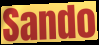
Sando